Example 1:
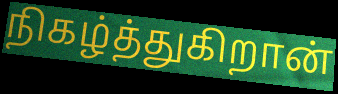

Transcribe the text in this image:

நிகழ்த்துகிறான்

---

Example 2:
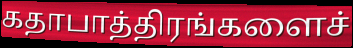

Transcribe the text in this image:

கதாபாத்திரங்களைச்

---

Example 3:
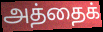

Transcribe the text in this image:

அத்தைக்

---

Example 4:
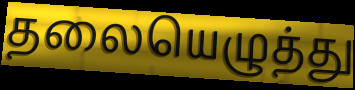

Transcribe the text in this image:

தலையெழுத்து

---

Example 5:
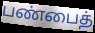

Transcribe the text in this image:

பண்பைத்